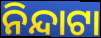
ନିନ୍ଦାଟା